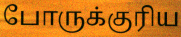
போருக்குரிய